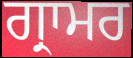
ਗ੍ਰਾਮਰ